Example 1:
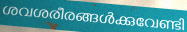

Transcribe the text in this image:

ശവശരീരങ്ങൾക്കുവേണ്ടി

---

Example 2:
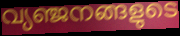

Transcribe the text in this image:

വ്യഞ്ജനങ്ങളുടെ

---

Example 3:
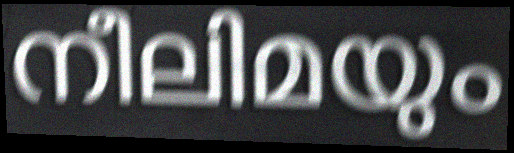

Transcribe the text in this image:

നീലിമയും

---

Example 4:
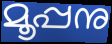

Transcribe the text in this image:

മൂപ്പനു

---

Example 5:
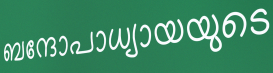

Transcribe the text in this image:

ബന്ദോപാധ്യായയുടെ